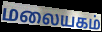
மலையகம்